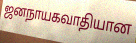
ஜனநாயகவாதியான